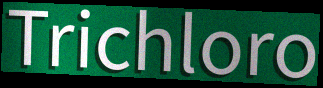
Trichloro